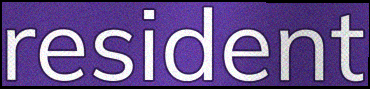
resident